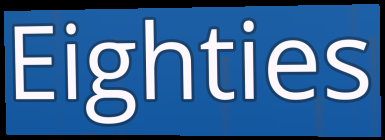
Eighties